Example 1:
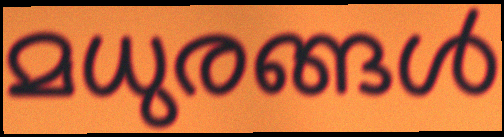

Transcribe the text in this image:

മധുരങ്ങൾ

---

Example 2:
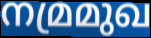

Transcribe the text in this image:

നമ്രമുഖ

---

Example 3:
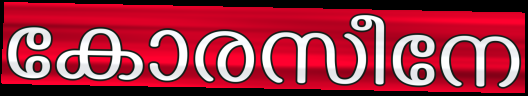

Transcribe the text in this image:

കോരസീനേ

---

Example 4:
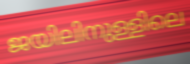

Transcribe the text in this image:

ജയിലിനുള്ളിലെ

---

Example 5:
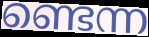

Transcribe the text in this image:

ണ്ടെന്ന